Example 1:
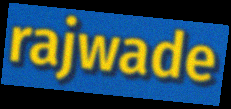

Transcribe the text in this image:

rajwade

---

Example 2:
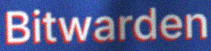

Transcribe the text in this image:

Bitwarden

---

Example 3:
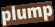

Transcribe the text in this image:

plump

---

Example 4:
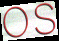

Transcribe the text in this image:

os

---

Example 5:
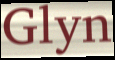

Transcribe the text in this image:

Glyn